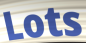
Lots